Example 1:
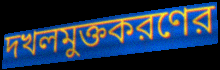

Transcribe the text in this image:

দখলমুক্তকরণের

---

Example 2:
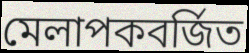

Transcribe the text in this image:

মেলাপকবর্জিত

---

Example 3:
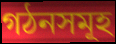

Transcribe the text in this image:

গঠনসমূহ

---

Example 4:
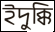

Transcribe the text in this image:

ইদুক্কি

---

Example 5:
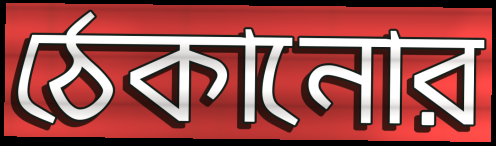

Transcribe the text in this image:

ঠেকানোর